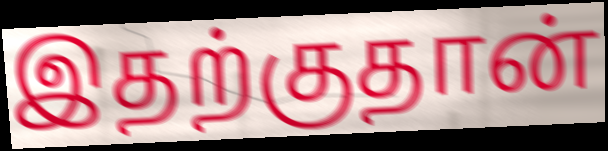
இதற்குதான்